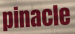
pinacle